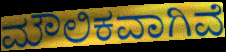
ಮೌಲಿಕವಾಗಿವೆ